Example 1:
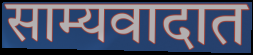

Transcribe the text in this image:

साम्यवादात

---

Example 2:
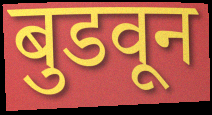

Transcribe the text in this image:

बुडवून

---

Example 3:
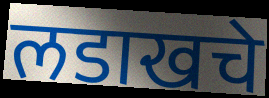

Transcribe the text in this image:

लडाखचे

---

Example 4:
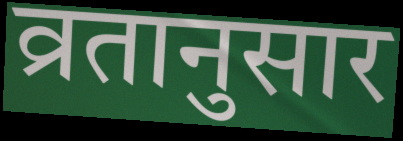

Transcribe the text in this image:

व्रतानुसार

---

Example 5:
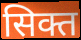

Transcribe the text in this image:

सिक्त